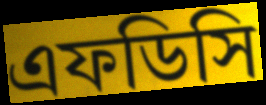
এফডিসি